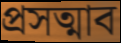
প্রসত্মাব